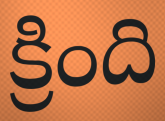
క్రింది